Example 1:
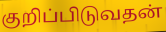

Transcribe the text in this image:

குறிப்பிடுவதன்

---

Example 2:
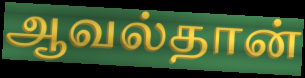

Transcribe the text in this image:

ஆவல்தான்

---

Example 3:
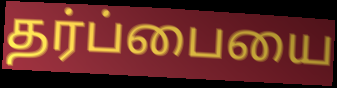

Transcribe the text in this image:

தர்ப்பையை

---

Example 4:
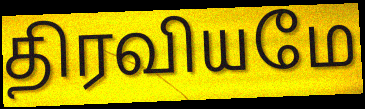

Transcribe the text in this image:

திரவியமே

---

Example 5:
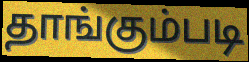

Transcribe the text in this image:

தாங்கும்படி